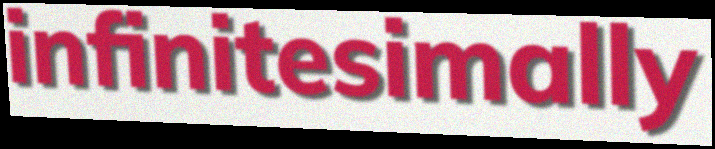
infinitesimally